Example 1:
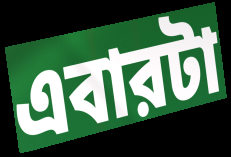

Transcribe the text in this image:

এবারটা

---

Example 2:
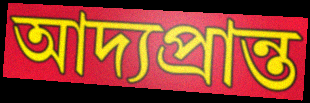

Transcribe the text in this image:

আদ্যপ্রান্ত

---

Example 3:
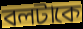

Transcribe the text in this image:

বলটাকে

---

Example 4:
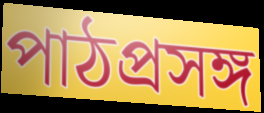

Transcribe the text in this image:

পাঠপ্রসঙ্গ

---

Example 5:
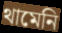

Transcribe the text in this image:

থামেনি